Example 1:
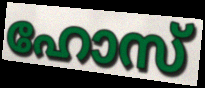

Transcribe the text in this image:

ഹോസ്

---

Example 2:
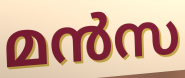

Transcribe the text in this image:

മൻസ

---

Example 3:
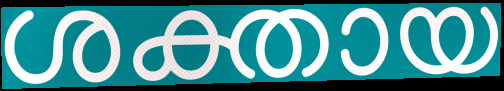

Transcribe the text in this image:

ശക്തായ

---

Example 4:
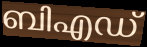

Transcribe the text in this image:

ബിഎഡ്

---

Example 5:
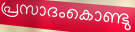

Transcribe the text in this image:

പ്രസാദംകൊണ്ടു